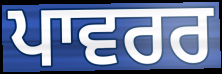
ਪਾਵਰਰ